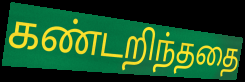
கண்டறிந்ததை